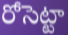
రోసెట్టా